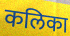
कलिका